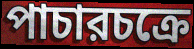
পাচারচক্রে